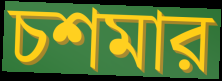
চশমার